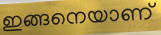
ഇങ്ങനെയാണ്